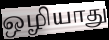
ஒழியாது